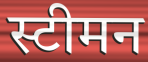
स्टीमन